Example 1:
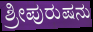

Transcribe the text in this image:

ಶ್ರೀಪುರುಷನು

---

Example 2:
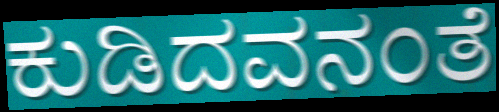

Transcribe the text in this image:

ಕುಡಿದವನಂತೆ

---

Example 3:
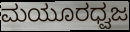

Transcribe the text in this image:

ಮಯೂರಧ್ವಜ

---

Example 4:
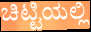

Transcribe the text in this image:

ಚಿಟ್ಟಿಯಲ್ಲಿ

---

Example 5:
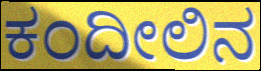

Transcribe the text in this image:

ಕಂದೀಲಿನ